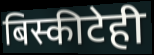
बिस्कीटेही